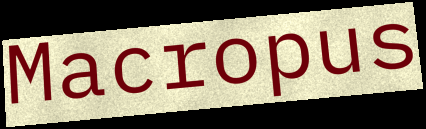
Macropus